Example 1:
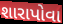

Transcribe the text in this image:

શારાપોવા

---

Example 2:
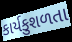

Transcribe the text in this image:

કાર્યકુશળતા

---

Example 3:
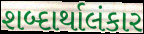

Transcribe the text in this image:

શબ્દાર્થાલંકાર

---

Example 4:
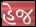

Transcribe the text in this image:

હેજ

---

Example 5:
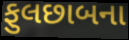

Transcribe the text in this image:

ફુલછાબના